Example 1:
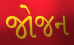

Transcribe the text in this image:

જોજન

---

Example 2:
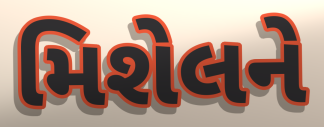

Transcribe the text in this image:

મિશેલને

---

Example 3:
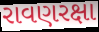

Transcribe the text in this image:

રાવણરક્ષા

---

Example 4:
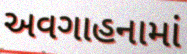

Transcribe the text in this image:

અવગાહનામાં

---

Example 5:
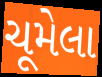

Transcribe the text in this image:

ચૂમેલા